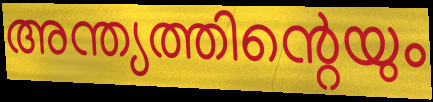
അന്ത്യത്തിന്റെയും